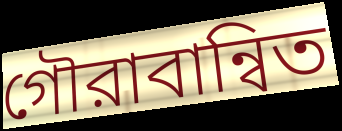
গৌরাবান্বিত